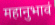
महानुभावं